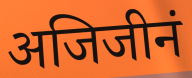
अजिजीनं